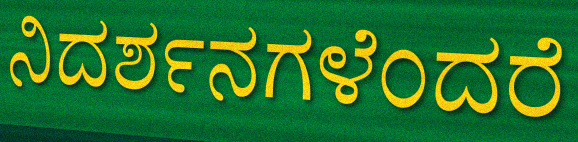
ನಿದರ್ಶನಗಳೆಂದರೆ